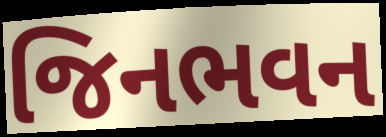
જિનભવન